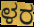
ಳರ